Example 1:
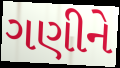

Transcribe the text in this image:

ગણીને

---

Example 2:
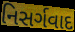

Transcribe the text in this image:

નિસર્ગવાદ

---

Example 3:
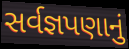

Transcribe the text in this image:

સર્વજ્ઞપણાનું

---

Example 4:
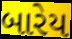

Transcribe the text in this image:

બારેય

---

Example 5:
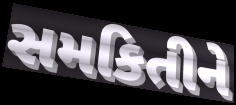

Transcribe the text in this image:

સમકિતીને